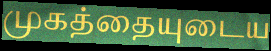
முகத்தையுடைய